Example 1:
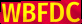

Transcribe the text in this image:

WBFDC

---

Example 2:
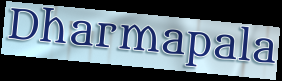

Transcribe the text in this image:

Dharmapala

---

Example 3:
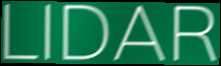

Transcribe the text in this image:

LIDAR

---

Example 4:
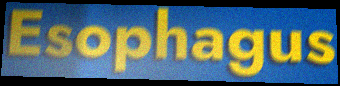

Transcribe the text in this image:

Esophagus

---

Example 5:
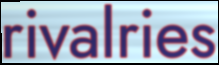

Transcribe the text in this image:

rivalries